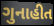
ગુનાહીત